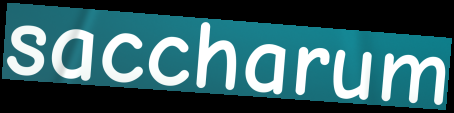
saccharum